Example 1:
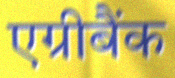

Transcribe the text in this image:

एग्रीबैंक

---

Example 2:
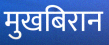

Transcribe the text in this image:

मुखबिरान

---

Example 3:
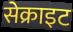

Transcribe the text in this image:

सेक्राइट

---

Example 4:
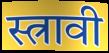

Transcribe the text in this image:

स्त्रावी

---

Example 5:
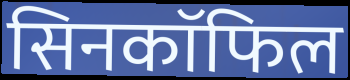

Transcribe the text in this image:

सिनकॉफिल